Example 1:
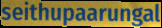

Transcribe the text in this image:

seithupaarungal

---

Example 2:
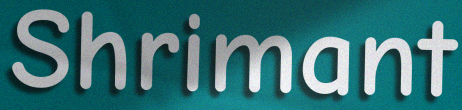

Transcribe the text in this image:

Shrimant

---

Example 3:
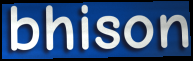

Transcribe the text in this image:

bhison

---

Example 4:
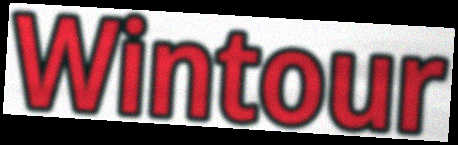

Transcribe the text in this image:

Wintour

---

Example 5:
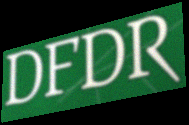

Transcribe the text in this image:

DFDR